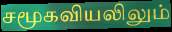
சமூகவியலிலும்